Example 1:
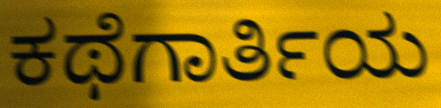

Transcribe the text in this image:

ಕಥೆಗಾರ್ತಿಯ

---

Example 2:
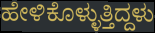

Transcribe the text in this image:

ಹೇಳಿಕೊಳ್ಳುತ್ತಿದ್ದಳು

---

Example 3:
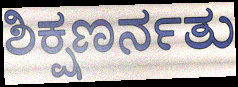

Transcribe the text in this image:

ಶಿಕ್ಷಣರ್ನತು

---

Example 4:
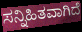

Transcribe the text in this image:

ಸನ್ನಿಹಿತವಾಗಿದೆ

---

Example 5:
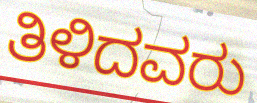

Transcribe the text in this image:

ತಿಳಿದವರು